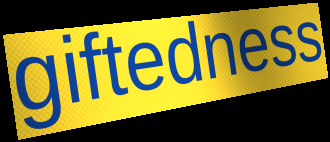
giftedness